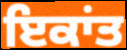
ਇਕਾਂਤ